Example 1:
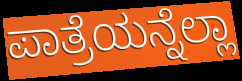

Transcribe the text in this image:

ಪಾತ್ರೆಯನ್ನೆಲ್ಲಾ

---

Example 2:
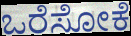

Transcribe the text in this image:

ಒರೆಸೋಕೆ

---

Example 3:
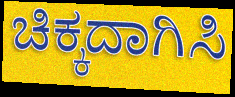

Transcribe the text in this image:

ಚಿಕ್ಕದಾಗಿಸಿ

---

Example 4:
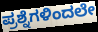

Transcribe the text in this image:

ಪ್ರಶ್ನೆಗಳಿಂದಲೇ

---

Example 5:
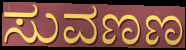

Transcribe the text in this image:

ಸುವಣಣ